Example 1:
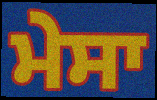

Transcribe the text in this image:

ਮੇਸਾ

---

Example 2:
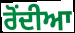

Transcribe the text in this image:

ਰੋਂਦੀਆ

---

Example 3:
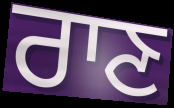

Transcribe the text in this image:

ਰਾਣ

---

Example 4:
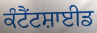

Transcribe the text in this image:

ਕੰਟੈਂਟਸ਼ਾਈਡ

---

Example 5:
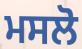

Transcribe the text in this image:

ਮਸਲੋ